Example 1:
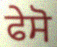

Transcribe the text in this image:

ਫੇਸੋ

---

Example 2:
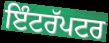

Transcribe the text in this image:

ਇੰਟਰੱਪਟਰ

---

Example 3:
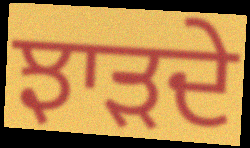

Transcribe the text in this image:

ਝਾੜਦੇ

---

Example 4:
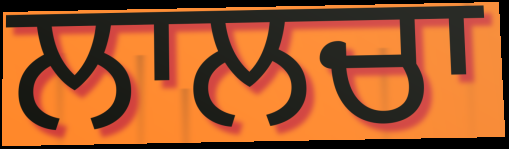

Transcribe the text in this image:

ਲਾਲਚਾ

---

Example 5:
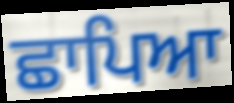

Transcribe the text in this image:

ਛਾਪਿਆ